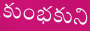
కుంభకుని